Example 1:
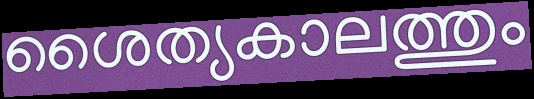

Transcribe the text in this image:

ശൈത്യകാലത്തും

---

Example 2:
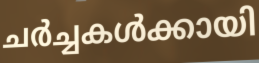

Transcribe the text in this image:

ചർച്ചകൾക്കായി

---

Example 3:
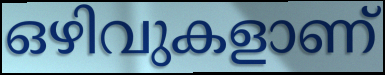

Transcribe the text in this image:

ഒഴിവുകളാണ്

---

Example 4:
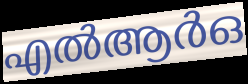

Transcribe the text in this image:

എൽആർഒ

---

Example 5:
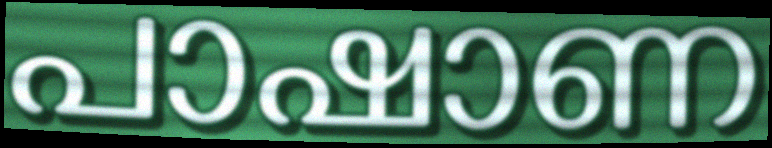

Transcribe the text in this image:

പാഷാണ